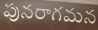
పునరాగమన